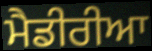
ਮੈਡੀਰੀਆ